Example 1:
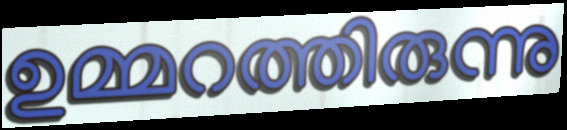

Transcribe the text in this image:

ഉമ്മറത്തിരുന്നു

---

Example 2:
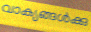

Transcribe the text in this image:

വാക്യങ്ങൾക്കു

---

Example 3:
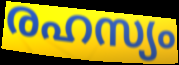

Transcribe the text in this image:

രഹസ്യം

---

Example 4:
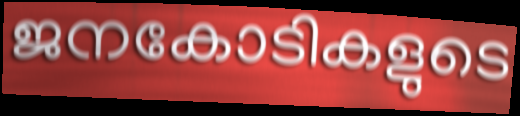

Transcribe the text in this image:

ജനകോടികളുടെ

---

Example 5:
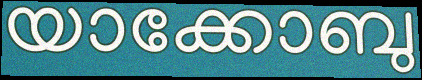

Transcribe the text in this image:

യാക്കോബു